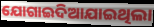
ଯୋଗାଇଦିଆଯାଇଥିଲା